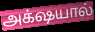
அக்‌ஷயால்